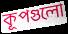
কূপগুলো